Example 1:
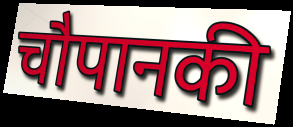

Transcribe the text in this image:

चौपानकी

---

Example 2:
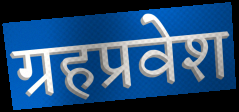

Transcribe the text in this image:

ग्रहप्रवेश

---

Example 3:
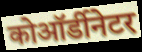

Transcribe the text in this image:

कोऑर्डीनेटर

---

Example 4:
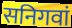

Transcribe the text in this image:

सनिगवां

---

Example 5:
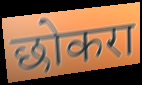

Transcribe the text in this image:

छोकरा